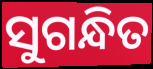
ସୁଗନ୍ଧିତ